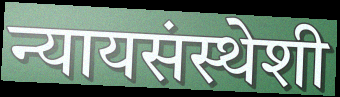
न्यायसंस्थेशी